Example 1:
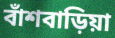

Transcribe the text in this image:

বাঁশবাড়িয়া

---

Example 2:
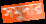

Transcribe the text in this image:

সমুদার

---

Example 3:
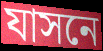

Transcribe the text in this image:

যাসনে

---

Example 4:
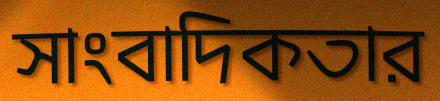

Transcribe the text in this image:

সাংবাদিকতার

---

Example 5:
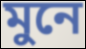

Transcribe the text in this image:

মুনে